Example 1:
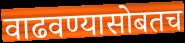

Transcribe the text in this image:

वाढवण्यासोबतच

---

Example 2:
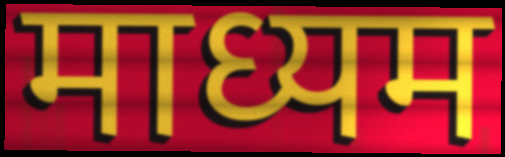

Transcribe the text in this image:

माध्यम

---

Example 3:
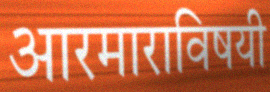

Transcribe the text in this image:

आरमाराविषयी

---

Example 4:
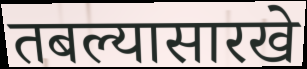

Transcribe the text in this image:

तबल्यासारखे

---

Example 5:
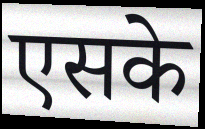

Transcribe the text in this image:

एसके